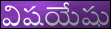
విషయేషు